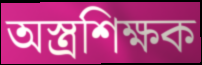
অস্ত্রশিক্ষক